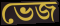
ভেজ